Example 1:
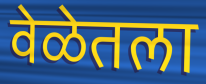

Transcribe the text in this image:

वेळेतला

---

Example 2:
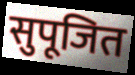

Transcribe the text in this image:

सुपूजित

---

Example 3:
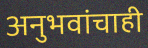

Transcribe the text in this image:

अनुभवांचाही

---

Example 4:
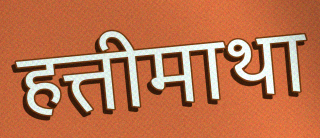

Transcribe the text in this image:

हत्तीमाथा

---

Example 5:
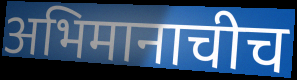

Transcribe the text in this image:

अभिमानाचीच